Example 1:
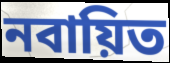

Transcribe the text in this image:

নবায়িত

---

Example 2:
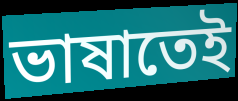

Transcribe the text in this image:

ভাষাতেই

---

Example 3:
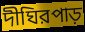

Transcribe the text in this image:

দীঘিরপাড়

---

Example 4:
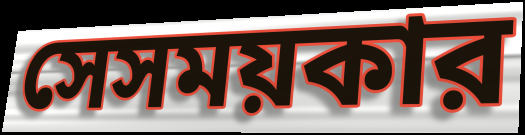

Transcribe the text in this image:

সেসময়কার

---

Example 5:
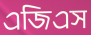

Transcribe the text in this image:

এজিএস